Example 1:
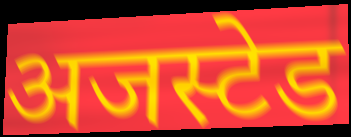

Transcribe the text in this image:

अजस्टेड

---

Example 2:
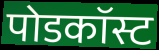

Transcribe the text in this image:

पोडकॉस्ट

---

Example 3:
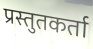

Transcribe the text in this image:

प्रस्तुतकर्ता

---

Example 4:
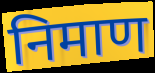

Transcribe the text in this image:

निमाण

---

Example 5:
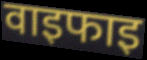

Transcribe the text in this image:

वाइफाइ